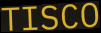
TISCO